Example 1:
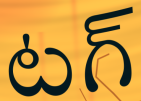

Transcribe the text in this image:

టగ్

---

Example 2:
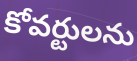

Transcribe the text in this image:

కోవర్టులను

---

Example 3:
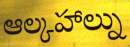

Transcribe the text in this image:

ఆల్కహాల్ను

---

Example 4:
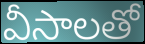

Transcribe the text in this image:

వీసాలతో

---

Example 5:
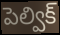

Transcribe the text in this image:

పెల్విక్